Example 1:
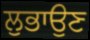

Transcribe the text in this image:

ਲੁਭਾਉਣ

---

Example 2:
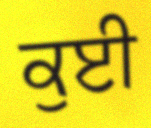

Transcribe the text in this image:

ਕੁਈ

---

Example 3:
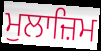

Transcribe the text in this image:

ਮੁਲਾਜ਼ਿਮ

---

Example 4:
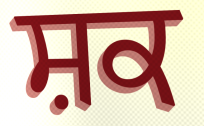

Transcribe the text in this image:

ਸ਼ਕ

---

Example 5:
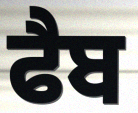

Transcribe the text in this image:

ਫੈਬ